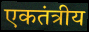
एकतंत्रीय